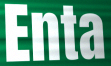
Enta